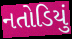
નતોડિયું